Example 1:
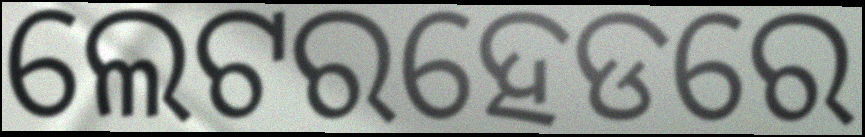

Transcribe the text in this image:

ଲେଟରହେଡରେ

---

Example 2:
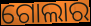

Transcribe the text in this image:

ଗୋଲାର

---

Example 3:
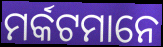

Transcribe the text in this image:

ମର୍କଟମାନେ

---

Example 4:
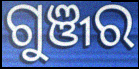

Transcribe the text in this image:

ଗୁଞ୍ଜର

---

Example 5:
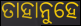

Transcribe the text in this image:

ତାହାନୁହେ